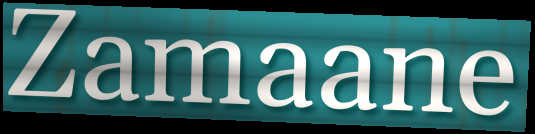
Zamaane